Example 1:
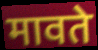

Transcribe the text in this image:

मावते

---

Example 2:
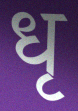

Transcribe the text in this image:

धृ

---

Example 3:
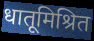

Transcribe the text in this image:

धातूमिश्रित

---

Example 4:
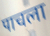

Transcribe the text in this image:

पाचला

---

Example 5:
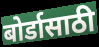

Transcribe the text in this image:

बोर्डासाठी